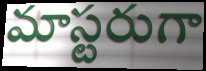
మాస్టరుగా